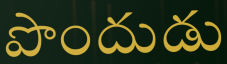
పొందుడు